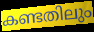
കണ്ടതിലും